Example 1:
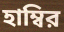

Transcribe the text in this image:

হাম্বির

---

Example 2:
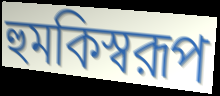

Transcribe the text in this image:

হুমকিস্বরূপ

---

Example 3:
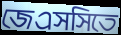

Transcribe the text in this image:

জেএসসিতে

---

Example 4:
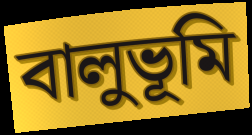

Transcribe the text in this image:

বালুভূমি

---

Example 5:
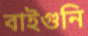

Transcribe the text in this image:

বাইগুনি